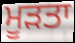
ਮੂੜਤਾ